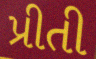
પ્રીતી